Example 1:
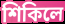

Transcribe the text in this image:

শিকিলে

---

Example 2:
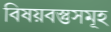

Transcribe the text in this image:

বিষয়বস্তুসমূহ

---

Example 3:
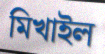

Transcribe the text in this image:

মিখাইল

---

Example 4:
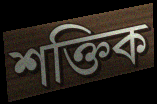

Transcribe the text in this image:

শক্তিক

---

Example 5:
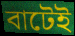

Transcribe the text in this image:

বাটেই